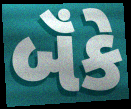
બૅંકે